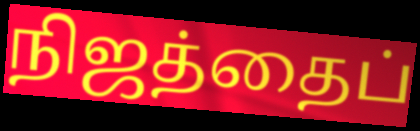
நிஜத்தைப்